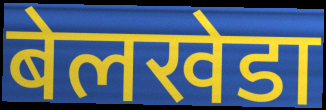
बेलखेडा